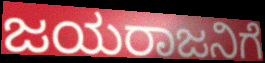
ಜಯರಾಜನಿಗೆ